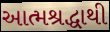
આત્મશ્રદ્ધાથી